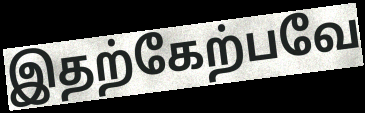
இதற்கேற்பவே